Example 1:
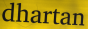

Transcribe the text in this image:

dhartan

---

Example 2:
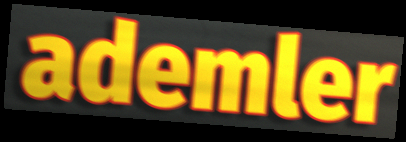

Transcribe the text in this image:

ademler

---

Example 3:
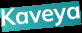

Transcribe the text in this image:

Kaveya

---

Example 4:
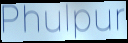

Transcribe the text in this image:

Phulpur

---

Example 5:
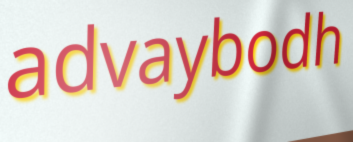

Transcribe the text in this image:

advaybodh